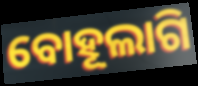
ବୋହୂଲାଗି